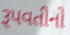
રૂપવતીનો